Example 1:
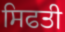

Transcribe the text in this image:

ਸਿਫਤੀ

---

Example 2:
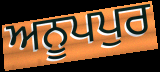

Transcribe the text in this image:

ਅਨੂਪਪੁਰ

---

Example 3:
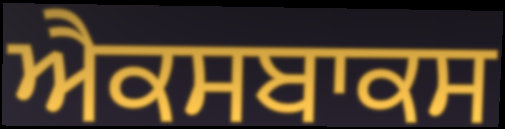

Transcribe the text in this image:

ਐਕਸਬਾਕਸ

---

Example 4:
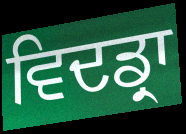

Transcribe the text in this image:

ਵਿਦਡ੍ਰਾ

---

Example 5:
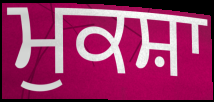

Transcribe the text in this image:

ਮੁਕਸ਼ਾ